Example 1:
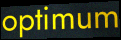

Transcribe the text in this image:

optimum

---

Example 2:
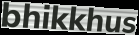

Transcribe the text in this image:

bhikkhus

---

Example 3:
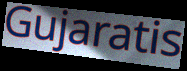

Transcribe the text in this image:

Gujaratis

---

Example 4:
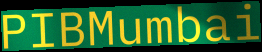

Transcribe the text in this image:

PIBMumbai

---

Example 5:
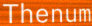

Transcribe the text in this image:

Thenum